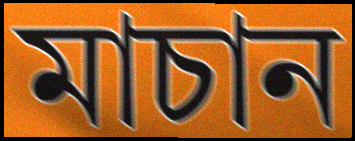
মাচান